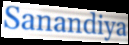
Sanandiya